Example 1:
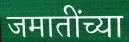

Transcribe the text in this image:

जमातींच्या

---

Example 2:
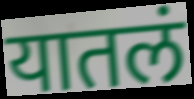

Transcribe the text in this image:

यातलं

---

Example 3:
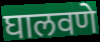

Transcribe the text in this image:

घालवणे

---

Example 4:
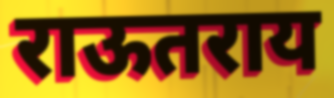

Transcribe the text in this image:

राऊतराय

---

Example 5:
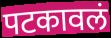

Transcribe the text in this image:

पटकावलं